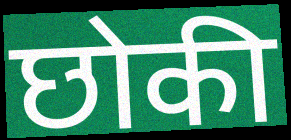
छोकी